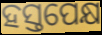
ହସ୍ତପେକ୍ଷ